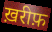
ख़रीफ़